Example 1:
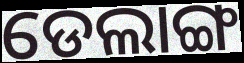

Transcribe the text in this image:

ଡେଲାଙ୍ଗ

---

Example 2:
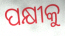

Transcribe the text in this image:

ପକ୍ଷୀକୁ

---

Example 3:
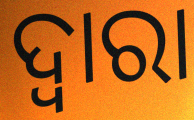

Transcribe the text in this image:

ଦ୍ବାରା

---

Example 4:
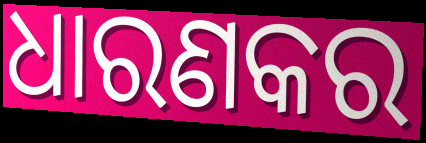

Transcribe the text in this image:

ଧାରଣକର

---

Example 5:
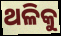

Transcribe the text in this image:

ଥଳିକୁ